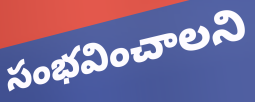
సంభవించాలని